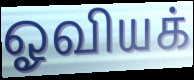
ஓவியக்